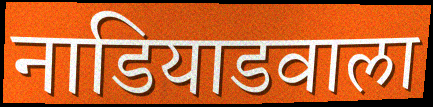
नाडियाडवाला